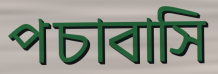
পচাবাসি